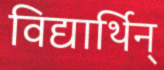
विद्यार्थिन्